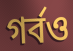
গর্বও